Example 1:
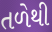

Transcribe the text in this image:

તળેથી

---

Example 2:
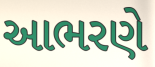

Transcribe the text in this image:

આભરણે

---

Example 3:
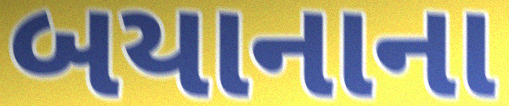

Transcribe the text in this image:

બયાનાના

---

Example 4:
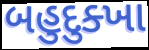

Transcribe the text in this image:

બહુદુક્ખા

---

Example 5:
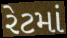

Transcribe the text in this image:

રેટમાં